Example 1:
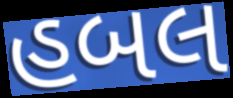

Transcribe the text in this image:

હબલ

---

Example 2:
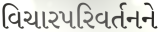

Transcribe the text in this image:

વિચારપરિવર્તનને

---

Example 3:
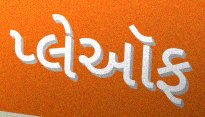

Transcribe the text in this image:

પ્લેઑફ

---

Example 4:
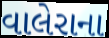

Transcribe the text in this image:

વાલેરાના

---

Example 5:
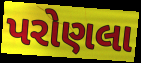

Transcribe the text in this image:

પરોણલા